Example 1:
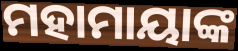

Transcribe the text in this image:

ମହାମାୟାଙ୍କ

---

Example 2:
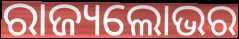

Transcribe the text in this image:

ରାଜ୍ୟଲୋଭର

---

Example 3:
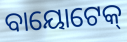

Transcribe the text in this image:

ବାୟୋଟେକ୍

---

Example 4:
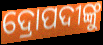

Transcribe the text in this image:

ଦ୍ରୋପଦୀଙ୍କୁ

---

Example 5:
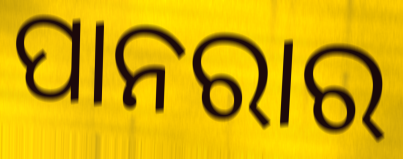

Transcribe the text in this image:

ପାନରାର